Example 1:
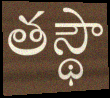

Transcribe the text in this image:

తస్థౌ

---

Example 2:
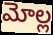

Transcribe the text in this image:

మోల్ల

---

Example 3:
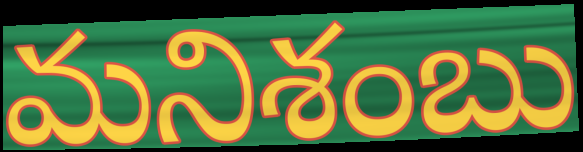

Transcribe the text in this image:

మనిశంబు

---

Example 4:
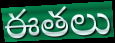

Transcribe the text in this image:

ఈతలు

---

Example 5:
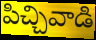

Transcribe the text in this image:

పిచ్చివాడి